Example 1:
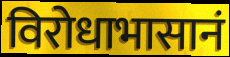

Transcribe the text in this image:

विरोधाभासानं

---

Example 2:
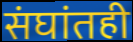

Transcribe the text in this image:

संघांतही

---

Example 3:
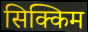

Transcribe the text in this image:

सिक्किम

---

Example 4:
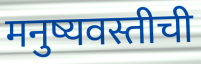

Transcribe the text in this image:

मनुष्यवस्तीची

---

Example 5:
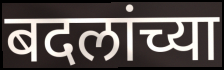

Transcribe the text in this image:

बदलांच्या